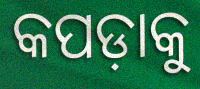
କପଡ଼ାକୁ